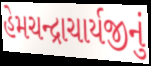
હેમચન્દ્રાચાર્યજીનું